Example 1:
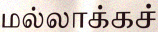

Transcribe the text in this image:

மல்லாக்கச்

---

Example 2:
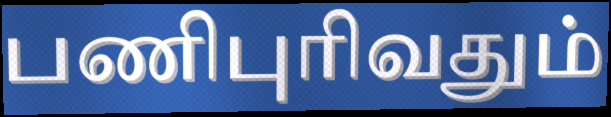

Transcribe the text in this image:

பணிபுரிவதும்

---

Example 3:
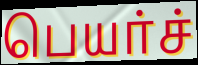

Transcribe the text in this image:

பெயர்ச்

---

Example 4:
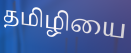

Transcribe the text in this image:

தமிழியை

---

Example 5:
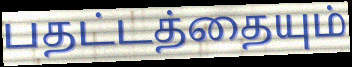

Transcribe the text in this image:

பதட்டத்தையும்